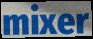
mixer